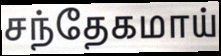
சந்தேகமாய்